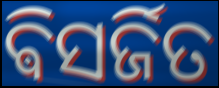
ଵିସର୍ଜିତ